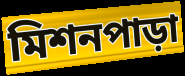
মিশনপাড়া